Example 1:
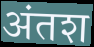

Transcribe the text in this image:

अंतश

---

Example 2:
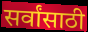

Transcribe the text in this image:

सर्वांसाठी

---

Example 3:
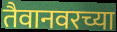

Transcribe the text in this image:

तैवानवरच्या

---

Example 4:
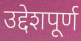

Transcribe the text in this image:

उद्देशपूर्ण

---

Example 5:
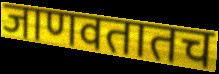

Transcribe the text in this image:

जाणवतातच